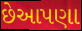
છેઆપણા